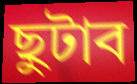
ছুটাব